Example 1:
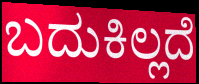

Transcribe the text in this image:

ಬದುಕಿಲ್ಲದೆ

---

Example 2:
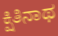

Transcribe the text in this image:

ಕ್ಷಿತಿನಾಥ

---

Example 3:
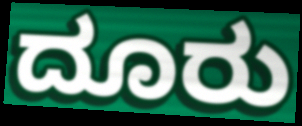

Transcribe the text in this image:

ದೂರು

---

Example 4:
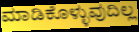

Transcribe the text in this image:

ಮಾಡಿಕೊಳ್ಳುವುದಿಲ್ಲ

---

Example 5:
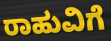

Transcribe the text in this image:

ರಾಹುವಿಗೆ